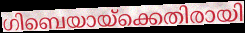
ഗിബെയായ്ക്കെതിരായി